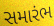
સમારંભ